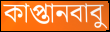
কাপ্তানবাবু